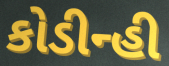
કોડીન્હી